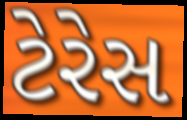
ટેરેસ